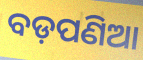
ବଡ଼ପଣିଆ